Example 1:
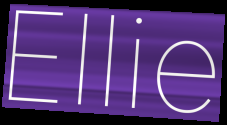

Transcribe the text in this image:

Ellie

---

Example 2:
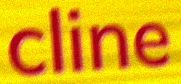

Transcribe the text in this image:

cline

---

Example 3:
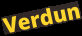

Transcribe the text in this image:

Verdun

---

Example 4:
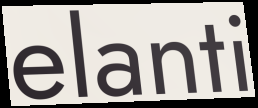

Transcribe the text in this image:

elanti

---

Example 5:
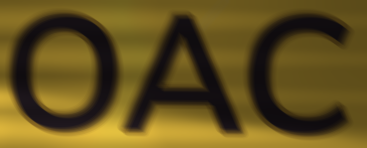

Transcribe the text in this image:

OAC